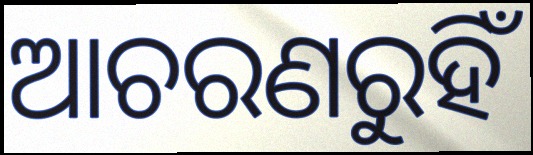
ଆଚରଣରୁହିଁ